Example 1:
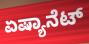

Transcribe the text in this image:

ಏಷ್ಯಾನೆಟ್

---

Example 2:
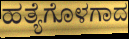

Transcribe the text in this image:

ಹತ್ಯೆಗೊಳಗಾದ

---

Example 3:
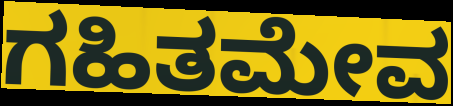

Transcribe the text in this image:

ಗಹಿತಮೇವ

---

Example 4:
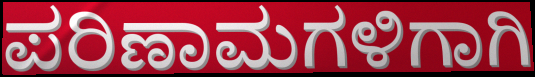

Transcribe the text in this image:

ಪರಿಣಾಮಗಳಿಗಾಗಿ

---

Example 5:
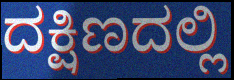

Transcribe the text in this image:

ದಕ್ಷಿಣದಲ್ಲಿ